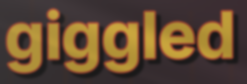
giggled